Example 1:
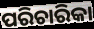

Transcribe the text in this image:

ପରିଚାରିକା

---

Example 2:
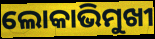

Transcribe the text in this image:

ଲୋକାଭିମୁଖୀ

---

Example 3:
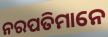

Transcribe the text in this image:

ନରପତିମାନେ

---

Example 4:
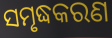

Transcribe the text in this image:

ସମୃଦ୍ଧକରଣ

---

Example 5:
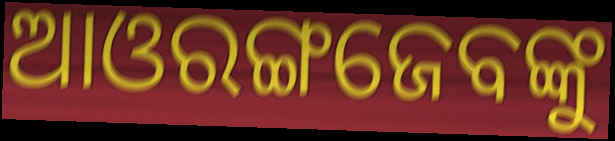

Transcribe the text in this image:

ଆଓରଙ୍ଗଜେବଙ୍କୁ